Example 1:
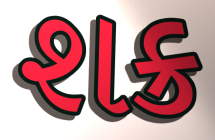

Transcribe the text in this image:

શક્ર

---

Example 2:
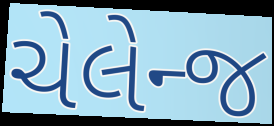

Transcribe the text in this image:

ચેલેન્જ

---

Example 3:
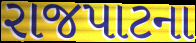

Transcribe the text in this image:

રાજપાટના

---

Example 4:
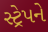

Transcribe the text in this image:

સ્ટ્રેપને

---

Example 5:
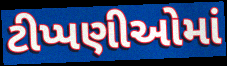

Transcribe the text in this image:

ટીપ્પણીઓમાં